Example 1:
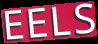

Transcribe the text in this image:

EELS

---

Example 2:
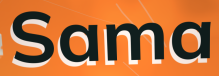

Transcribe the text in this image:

Sama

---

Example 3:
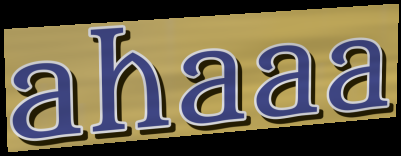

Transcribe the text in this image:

ahaaa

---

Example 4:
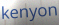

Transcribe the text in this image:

kenyon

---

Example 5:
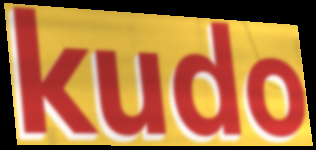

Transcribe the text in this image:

kudo